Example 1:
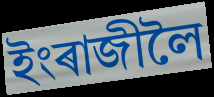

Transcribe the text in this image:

ইংৰাজীলৈ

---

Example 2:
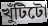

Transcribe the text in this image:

খুঁটিটো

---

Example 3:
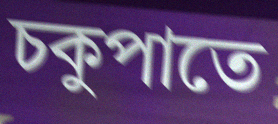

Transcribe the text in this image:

চকুপাতে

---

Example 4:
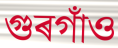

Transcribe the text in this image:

গুৰগাঁও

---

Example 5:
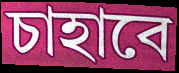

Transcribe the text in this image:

চাহাবে